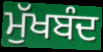
ਮੁੱਖਬੰਦ